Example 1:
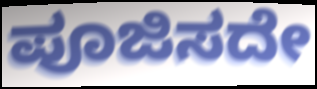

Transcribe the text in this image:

ಪೂಜಿಸದೇ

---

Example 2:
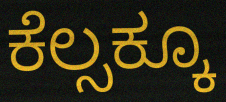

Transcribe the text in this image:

ಕೆಲ್ಸಕ್ಕೂ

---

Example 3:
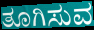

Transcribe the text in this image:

ತೂಗಿಸುವ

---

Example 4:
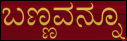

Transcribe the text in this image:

ಬಣ್ಣವನ್ನೂ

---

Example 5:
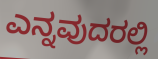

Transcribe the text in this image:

ಎನ್ನವುದರಲ್ಲಿ